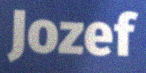
Jozef